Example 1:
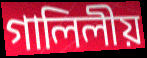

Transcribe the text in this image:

গালিলীয়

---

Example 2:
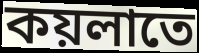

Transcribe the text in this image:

কয়লাতে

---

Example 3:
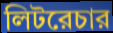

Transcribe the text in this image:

লিটরেচার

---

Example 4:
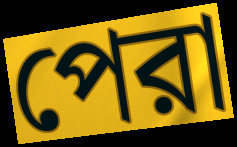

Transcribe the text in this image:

পেরা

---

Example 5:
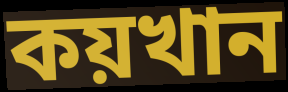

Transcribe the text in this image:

কয়খান